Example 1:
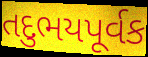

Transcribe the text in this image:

તદુભયપૂર્વક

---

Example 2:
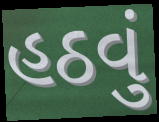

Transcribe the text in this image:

હઠવું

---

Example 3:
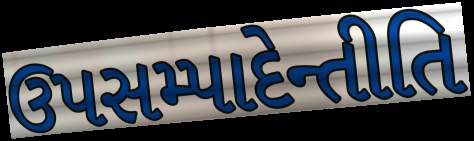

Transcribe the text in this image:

ઉપસમ્પાદેન્તીતિ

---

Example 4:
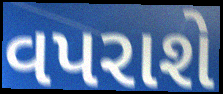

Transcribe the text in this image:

વપરાશે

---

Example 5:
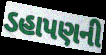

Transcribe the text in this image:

ડહાપણની